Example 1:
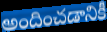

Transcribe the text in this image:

అందించడానికీ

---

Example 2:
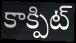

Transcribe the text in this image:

కాక్పిట్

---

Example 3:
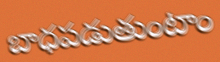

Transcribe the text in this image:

బాధపడుతుంటాం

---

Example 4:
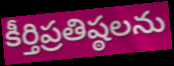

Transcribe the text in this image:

కీర్తిప్రతిష్ఠలను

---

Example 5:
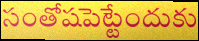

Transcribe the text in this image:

సంతోషపెట్టేందుకు